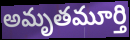
అమృతమూర్తి